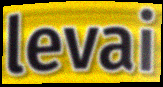
levai